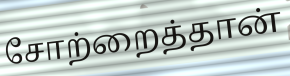
சோற்றைத்தான்